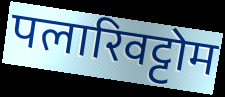
पलारिवट्टोम